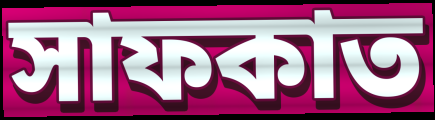
সাফকাত